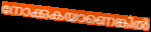
നോക്കുകയാണെങ്കിൽ